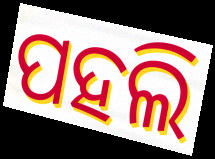
ପହଲି